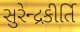
સુરેન્દ્રકીર્તિ